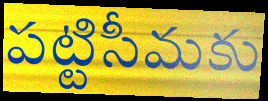
పట్టిసీమకు